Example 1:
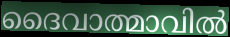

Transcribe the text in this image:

ദൈവാത്മാവിൽ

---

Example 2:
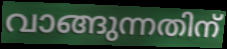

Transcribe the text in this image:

വാങ്ങുന്നതിന്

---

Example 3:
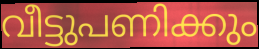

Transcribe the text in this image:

വീട്ടുപണിക്കും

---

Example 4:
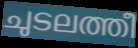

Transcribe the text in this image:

ചുടലത്തീ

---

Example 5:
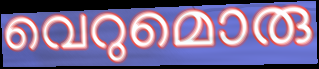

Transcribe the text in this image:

വെറുമൊരു